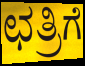
ಛತ್ರಿಗೆ